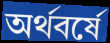
অর্থবর্ষে